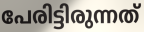
പേരിട്ടിരുന്നത്